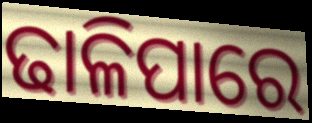
ଢାଳିପାରେ